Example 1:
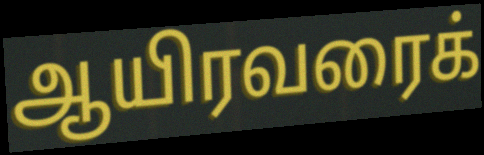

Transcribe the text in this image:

ஆயிரவரைக்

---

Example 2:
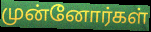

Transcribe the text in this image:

முன்னோர்கள்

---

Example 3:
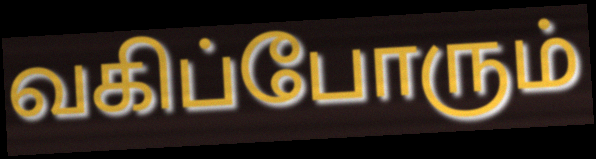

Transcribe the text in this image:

வகிப்போரும்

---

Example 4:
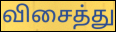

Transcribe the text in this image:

விசைத்து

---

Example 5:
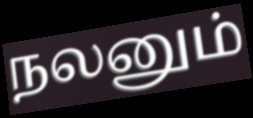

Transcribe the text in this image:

நலனும்